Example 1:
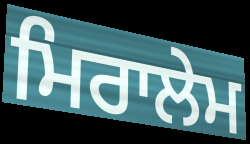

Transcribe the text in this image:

ਮਿਰਾਲੇਮ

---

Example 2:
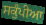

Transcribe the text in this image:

ਸਕੁੰਪੀਆ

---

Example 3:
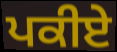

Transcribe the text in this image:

ਪਕੀਏ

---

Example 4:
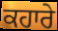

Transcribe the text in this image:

ਕਹਾਰੇ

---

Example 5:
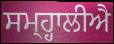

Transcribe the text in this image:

ਸਮ੍ਹ੍ਹਾਲੀਐ